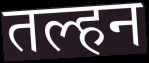
तल्हन